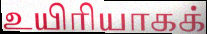
உயிரியாகக்